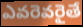
ఎవరెవరైతే